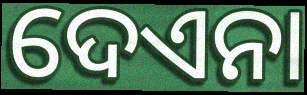
ଦେଏନା